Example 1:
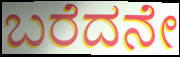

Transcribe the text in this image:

ಬರೆದನೇ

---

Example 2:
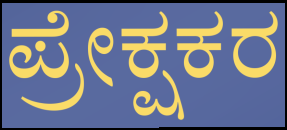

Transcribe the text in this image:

ಪ್ರೇಕ್ಷಕರ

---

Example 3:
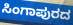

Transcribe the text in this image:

ಸಿಂಗಾಪುರದ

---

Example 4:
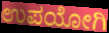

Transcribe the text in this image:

ಉಪಯೋಗಿ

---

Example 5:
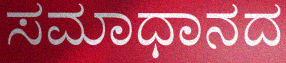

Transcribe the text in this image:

ಸಮಾಧಾನದ